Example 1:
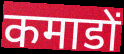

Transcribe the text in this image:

कमाडों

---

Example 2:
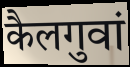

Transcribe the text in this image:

कैलगुवां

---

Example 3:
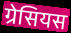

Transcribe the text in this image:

ग्रेसियस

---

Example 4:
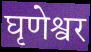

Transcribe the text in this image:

घृणेश्वर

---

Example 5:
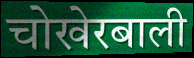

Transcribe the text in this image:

चोखेरबाली